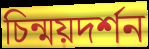
চিন্ময়দর্শন